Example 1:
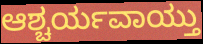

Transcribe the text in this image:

ಆಶ್ಚರ್ಯವಾಯ್ತು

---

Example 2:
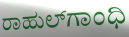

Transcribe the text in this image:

ರಾಹುಲ್‌ಗಾಂಧಿ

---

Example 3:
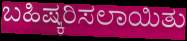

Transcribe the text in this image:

ಬಹಿಷ್ಕರಿಸಲಾಯಿತು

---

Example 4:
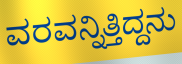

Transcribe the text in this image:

ವರವನ್ನಿತ್ತಿದ್ದನು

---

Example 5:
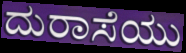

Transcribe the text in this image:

ದುರಾಸೆಯು